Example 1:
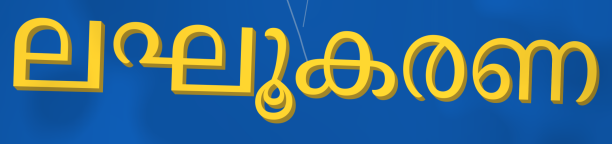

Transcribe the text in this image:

ലഘൂകരണ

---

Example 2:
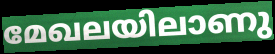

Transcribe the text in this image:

മേഖലയിലാണു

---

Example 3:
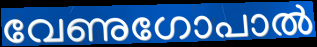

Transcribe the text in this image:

വേണുഗോപാൽ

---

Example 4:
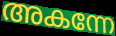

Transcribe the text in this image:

അകന്നേ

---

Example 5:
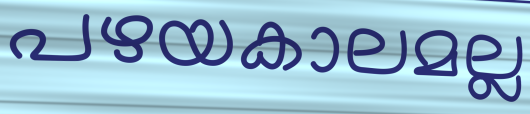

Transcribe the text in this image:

പഴയകാലമല്ല